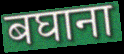
बघाना